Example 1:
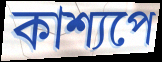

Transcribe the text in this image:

কাশ্যপে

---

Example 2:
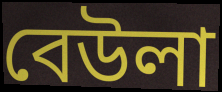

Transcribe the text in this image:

বেউলা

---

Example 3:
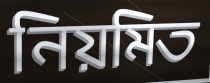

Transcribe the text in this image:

নিয়মিত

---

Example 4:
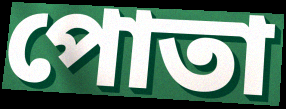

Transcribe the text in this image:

পোতা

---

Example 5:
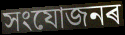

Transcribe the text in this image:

সংযোজনৰ